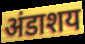
अंडाशय